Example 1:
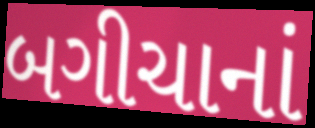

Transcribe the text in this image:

બગીચાનાં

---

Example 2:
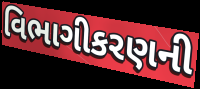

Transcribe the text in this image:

વિભાગીકરણની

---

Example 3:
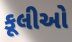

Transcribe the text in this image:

કૂલીઓ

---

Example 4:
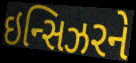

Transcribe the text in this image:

ઇન્સિઝરને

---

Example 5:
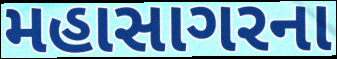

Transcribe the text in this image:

મહાસાગરના